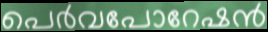
പെർവപോറേഷൻ